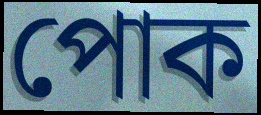
পোক